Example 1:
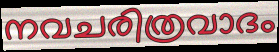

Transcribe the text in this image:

നവചരിത്രവാദം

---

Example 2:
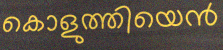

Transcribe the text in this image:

കൊളുത്തിയെൻ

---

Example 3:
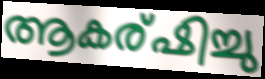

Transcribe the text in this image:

ആകര്ഷിച്ചു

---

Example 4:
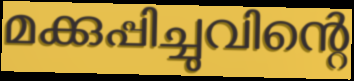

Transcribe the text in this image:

മക്കുപ്പിച്ചുവിന്റെ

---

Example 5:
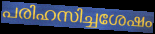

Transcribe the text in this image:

പരിഹസിച്ചശേഷം